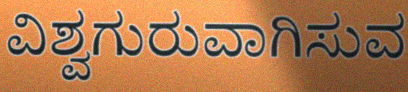
ವಿಶ್ವಗುರುವಾಗಿಸುವ